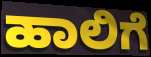
ಹಾಲಿಗೆ